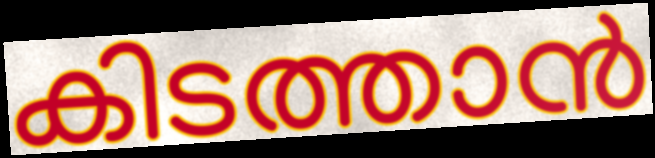
കിടത്താൻ